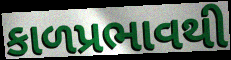
કાળપ્રભાવથી